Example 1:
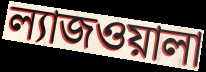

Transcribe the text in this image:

ল্যাজওয়ালা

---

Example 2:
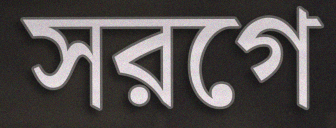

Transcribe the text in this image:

সরগে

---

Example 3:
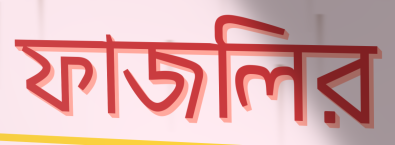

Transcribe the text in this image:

ফাজলির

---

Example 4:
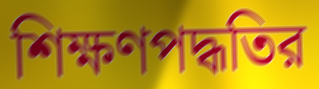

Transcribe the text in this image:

শিক্ষণপদ্ধতির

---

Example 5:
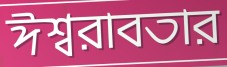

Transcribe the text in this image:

ঈশ্বরাবতার